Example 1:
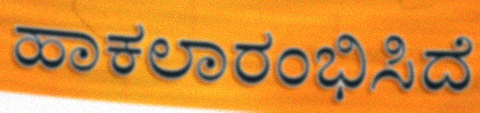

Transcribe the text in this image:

ಹಾಕಲಾರಂಭಿಸಿದೆ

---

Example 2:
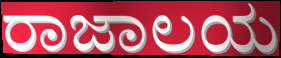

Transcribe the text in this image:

ರಾಜಾಲಯ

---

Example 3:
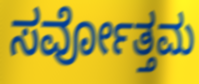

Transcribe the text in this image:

ಸರ್ವೋತ್ತಮ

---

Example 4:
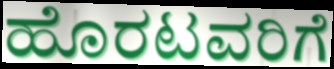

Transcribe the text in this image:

ಹೊರಟವರಿಗೆ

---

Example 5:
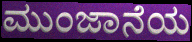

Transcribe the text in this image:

ಮುಂಜಾನೆಯ